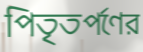
পিতৃতর্পণের